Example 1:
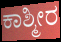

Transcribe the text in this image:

ಕಾಶ್ಮೀರ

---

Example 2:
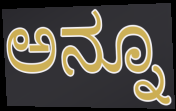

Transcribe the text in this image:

ಅನ್ನೂ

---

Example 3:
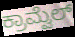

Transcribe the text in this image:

ಕ್ರಾಮ್ವೆಲ್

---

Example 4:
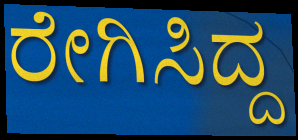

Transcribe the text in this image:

ರೇಗಿಸಿದ್ದ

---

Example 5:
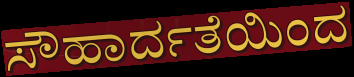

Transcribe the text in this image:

ಸೌಹಾರ್ದತೆಯಿಂದ